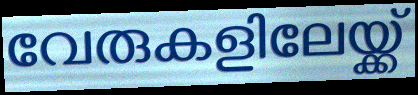
വേരുകളിലേയ്ക്ക്